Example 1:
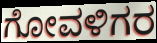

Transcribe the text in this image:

ಗೋವಳಿಗರ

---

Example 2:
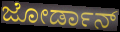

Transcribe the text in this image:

ಜೋರ್ಡಾನ್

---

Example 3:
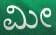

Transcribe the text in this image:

ಮೀ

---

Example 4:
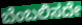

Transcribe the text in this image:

ಬೆಂಬಲಿಸದೇ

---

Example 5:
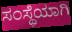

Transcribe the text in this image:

ಸಂಸ್ಥೆಯಾಗಿ